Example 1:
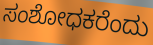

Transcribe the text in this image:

ಸಂಶೋಧಕರೆಂದು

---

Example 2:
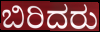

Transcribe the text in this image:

ಬಿರಿದರು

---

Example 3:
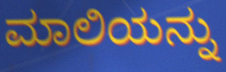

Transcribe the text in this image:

ಮಾಲಿಯನ್ನು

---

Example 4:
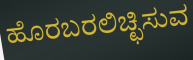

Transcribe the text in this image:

ಹೊರಬರಲಿಚ್ಛಿಸುವ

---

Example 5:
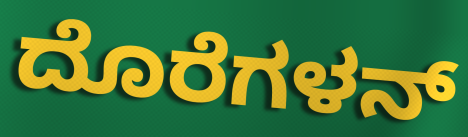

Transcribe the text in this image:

ದೊರೆಗಳನ್